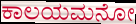
ಕಾಲಯಮನೋ